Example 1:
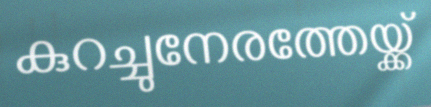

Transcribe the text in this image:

കുറച്ചുനേരത്തേയ്ക്ക്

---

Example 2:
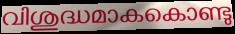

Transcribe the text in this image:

വിശുദ്ധമാകകൊണ്ടു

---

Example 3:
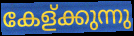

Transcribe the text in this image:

കേള്ക്കുന്നു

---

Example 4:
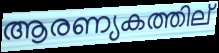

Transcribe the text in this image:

ആരണ്യകത്തില്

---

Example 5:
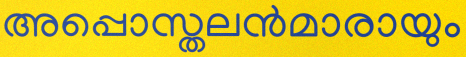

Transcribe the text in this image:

അപ്പൊസ്തലൻമാരായും